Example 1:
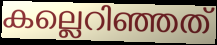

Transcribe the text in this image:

കല്ലെറിഞ്ഞത്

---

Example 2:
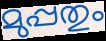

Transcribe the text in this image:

മുപ്പതും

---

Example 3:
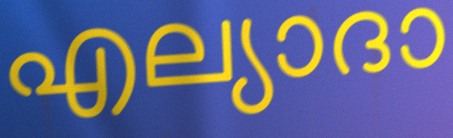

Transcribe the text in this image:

എല്യാദാ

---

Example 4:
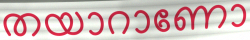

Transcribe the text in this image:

തയാറാണോ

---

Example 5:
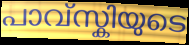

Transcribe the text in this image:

പാവ്സ്കിയുടെ